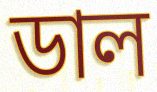
ডাল